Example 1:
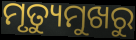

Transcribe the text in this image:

ମୃତ୍ୟୁମୁଖରୁ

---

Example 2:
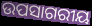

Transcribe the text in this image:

ଉପସାଗରୀୟ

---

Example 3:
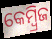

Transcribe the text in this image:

କେମ୍ବ୍ରିଜ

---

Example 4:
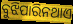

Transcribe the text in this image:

ବୁଝିପାରିନଥାଏ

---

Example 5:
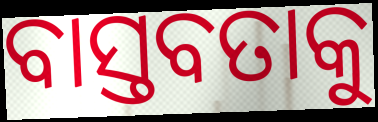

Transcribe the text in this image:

ବାସ୍ତବତାକୁ